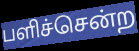
பளிச்சென்ற